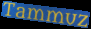
Tammuz